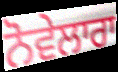
ਨੋਵੇਲਾਰਾ